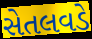
સેતલવડે